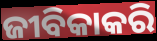
ଜୀବିକାକରି